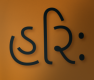
હરિઃ